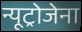
न्यूट्रोजेना